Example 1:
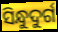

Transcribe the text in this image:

ସିନ୍ଧୁଦୁର୍ଗ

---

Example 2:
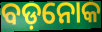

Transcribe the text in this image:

ବଡ଼ନୋକ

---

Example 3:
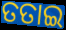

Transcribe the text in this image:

ତତାଇ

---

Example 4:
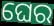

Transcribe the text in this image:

ଘେର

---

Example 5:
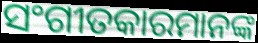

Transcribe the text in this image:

ସଂଗୀତକାରମାନଙ୍କ